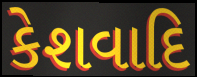
કેશવાદિ